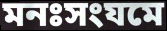
মনঃসংযমে